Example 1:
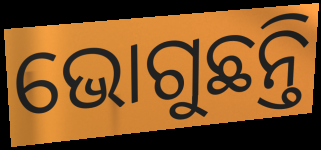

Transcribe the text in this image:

ଭୋଗୁଛନ୍ତି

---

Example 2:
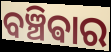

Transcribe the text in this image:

ବଞ୍ଚିଵାର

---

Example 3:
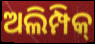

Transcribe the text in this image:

ଅଲିମ୍ପିକ୍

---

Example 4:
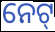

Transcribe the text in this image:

ନେଟ୍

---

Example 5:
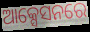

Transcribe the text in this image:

ଆକ୍ସେସନରେ